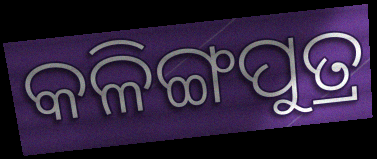
କଳିଙ୍ଗପୁତ୍ର